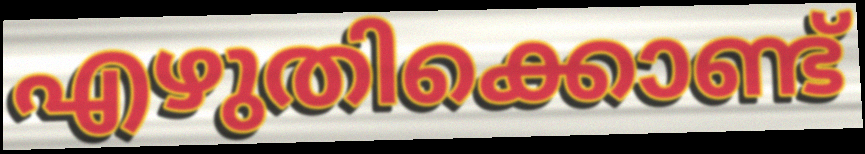
എഴുതിക്കൊണ്ട്